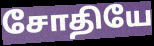
சோதியே